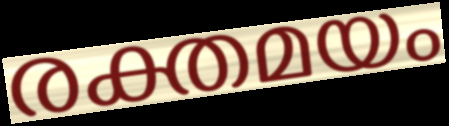
രക്തമയം